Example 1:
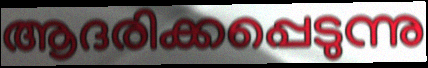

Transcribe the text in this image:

ആദരിക്കപ്പെടുന്നു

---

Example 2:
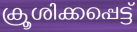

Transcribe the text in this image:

ക്രൂശിക്കപ്പെട്ട്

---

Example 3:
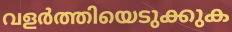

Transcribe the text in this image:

വളർത്തിയെടുക്കുക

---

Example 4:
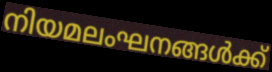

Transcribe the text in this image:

നിയമലംഘനങ്ങൾക്ക്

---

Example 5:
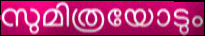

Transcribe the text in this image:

സുമിത്രയോടും